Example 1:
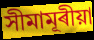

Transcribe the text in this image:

সীমামূৰীয়া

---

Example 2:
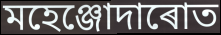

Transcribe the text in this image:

মহেঞ্জোদাৰোত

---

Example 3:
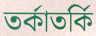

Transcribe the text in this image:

তৰ্কাতৰ্কি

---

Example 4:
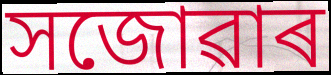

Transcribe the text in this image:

সজোৱাৰ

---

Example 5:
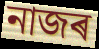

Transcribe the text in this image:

নাজৰ